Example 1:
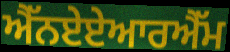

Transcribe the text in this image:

ਐੱਨਏਏਆਰਐੱਮ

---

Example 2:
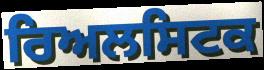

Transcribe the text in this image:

ਰਿਅਲਸਿਟਕ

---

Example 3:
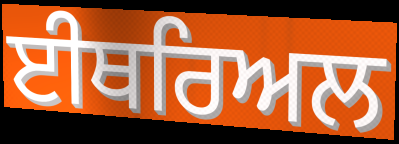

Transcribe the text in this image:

ਈਥਰਿਅਲ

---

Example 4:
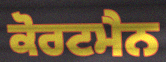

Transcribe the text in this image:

ਕੋਰਟਮੈਨ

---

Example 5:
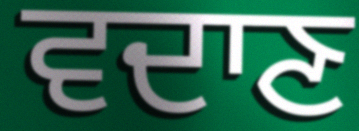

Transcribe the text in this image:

ਵਦਾਣ